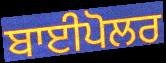
ਬਾਈਪੋਲਰ